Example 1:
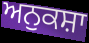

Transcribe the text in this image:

ਅਨੁਕਸ਼ਾ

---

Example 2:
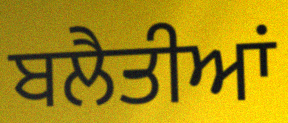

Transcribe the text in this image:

ਬਲੈਤੀਆਂ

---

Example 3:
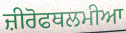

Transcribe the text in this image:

ਜ਼ੀਰੋਫਥਲਮੀਆ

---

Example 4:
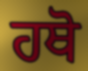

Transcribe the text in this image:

ਹਥੋ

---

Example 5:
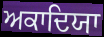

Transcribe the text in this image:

ਅਕਾਦਿਯਾ